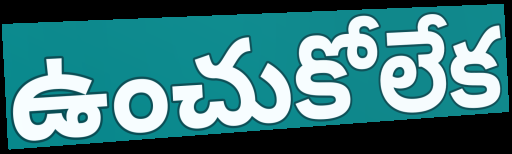
ఉంచుకోలేక